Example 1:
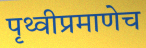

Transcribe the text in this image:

पृथ्वीप्रमाणेच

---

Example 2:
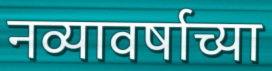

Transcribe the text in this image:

नव्यावर्षाच्या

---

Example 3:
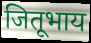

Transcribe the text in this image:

जितूभाय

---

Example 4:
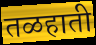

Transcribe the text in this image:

तळहाती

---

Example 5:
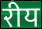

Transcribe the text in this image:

रीय